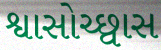
શ્વાસોચ્છ્વાસ